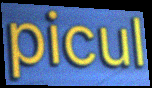
picul